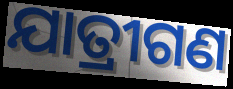
ଯାତ୍ରୀଗଣ